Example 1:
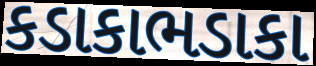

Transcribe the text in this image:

કડાકાભડાકા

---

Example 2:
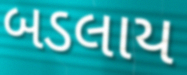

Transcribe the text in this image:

બડલાય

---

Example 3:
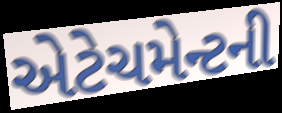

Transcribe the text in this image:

એટેચમેન્ટની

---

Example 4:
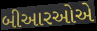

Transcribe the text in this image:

બીઆરઓએ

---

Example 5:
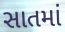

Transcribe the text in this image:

સાતમાં